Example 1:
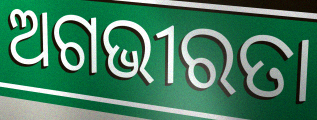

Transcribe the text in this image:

ଅଗଭୀରତା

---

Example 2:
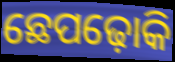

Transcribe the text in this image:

ଛେପଢ଼ୋକି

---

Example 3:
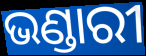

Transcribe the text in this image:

ଭଣ୍ଡାରୀ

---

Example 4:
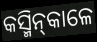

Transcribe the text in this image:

କସ୍ମିନ୍‍କାଳେ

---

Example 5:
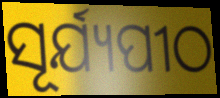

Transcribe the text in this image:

ସୂର୍ଯ୍ୟପୀଠ